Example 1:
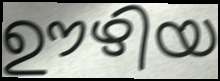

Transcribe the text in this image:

ഊഴിയ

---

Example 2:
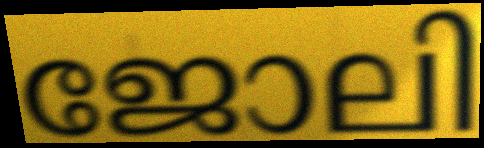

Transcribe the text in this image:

ജോലി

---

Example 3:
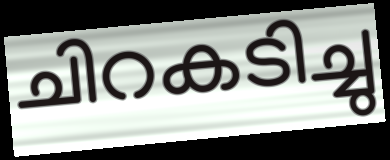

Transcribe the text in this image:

ചിറകടിച്ചു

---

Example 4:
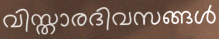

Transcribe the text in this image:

വിസ്താരദിവസങ്ങൾ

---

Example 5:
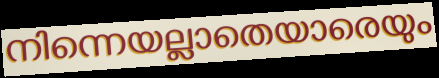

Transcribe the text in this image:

നിന്നെയല്ലാതെയാരെയും